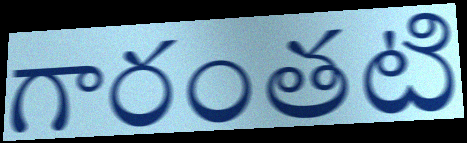
గారంతటి